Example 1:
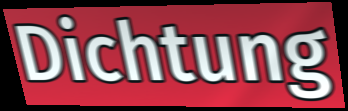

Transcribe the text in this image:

Dichtung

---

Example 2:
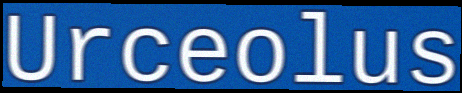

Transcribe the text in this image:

Urceolus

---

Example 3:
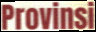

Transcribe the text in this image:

Provinsi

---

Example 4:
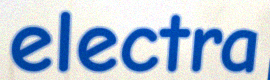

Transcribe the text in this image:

electra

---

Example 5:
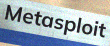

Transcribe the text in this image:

Metasploit